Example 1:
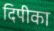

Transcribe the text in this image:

दिपीका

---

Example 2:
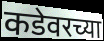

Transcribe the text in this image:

कडेवरच्या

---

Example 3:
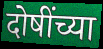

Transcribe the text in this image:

दोषींच्या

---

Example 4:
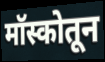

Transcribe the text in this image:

मॉस्कोतून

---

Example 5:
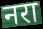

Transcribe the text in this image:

नरा